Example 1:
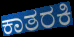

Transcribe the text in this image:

ಕಾತರಕಿ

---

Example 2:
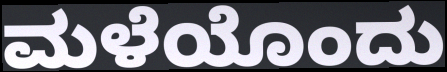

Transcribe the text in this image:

ಮಳೆಯೊಂದು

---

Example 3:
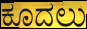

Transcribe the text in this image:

ಕೂದಲು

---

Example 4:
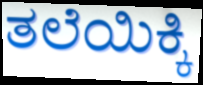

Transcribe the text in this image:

ತಲೆಯಿಕ್ಕಿ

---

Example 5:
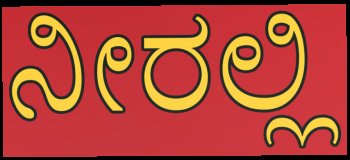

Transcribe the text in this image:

ನೀರಲ್ಲಿ